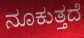
ನೂಕುತ್ತದೆ